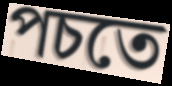
পচতে